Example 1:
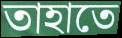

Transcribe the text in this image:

তাহাতে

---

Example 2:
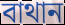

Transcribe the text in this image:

বাথান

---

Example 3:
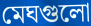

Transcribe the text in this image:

মেঘগুলো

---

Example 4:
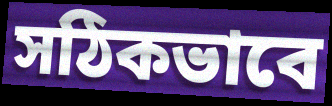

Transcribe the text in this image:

সঠিকভাবে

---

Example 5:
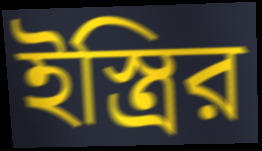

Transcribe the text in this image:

ইস্ত্রির